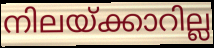
നിലയ്ക്കാറില്ല